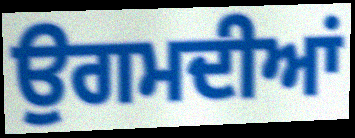
ਉਗਮਦੀਆਂ